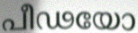
പീഢയോ